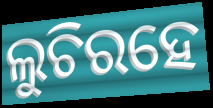
ଲୁଚିରହେ